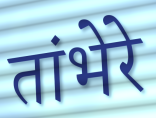
तांभेरे